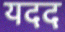
यदद